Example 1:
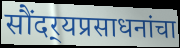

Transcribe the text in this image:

सौंदर्यप्रसाधनांचा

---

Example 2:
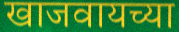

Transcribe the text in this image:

खाजवायच्या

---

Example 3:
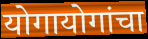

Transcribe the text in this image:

योगायोगांचा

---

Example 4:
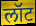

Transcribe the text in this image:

लॉट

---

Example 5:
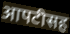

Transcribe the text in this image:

आपटीसह